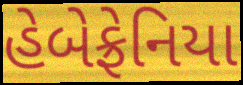
હેબેફ્રેનિયા